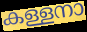
കള്ളനാ